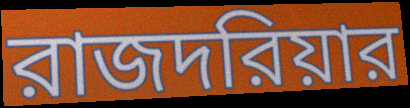
রাজদরিয়ার